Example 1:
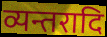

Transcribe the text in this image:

व्यन्तरादि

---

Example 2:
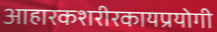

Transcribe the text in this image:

आहारकशरीरकायप्रयोगी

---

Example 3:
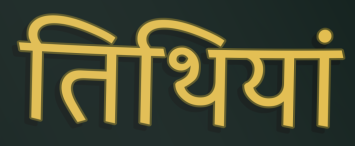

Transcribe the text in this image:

तिथियां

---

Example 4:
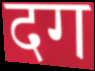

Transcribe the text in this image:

दग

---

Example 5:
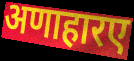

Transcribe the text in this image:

अणाहारए